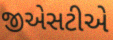
જીએસટીએ